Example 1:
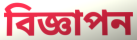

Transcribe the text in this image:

বিজ্ঞাপন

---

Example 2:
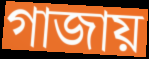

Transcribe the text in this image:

গাজায়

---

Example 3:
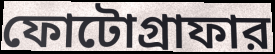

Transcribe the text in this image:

ফোটোগ্রাফার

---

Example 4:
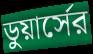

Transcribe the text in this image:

ডুয়ার্সের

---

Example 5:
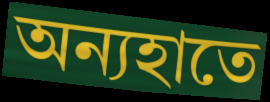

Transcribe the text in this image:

অন্যহাতে